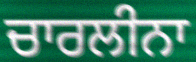
ਚਾਰਲੀਨਾ